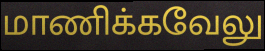
மாணிக்கவேலு